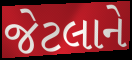
જેટલાને